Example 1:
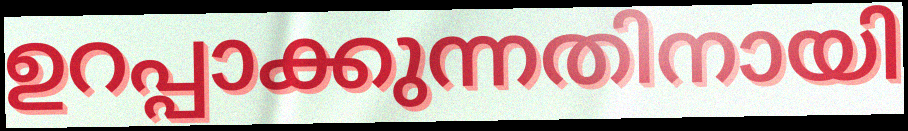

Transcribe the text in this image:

ഉറപ്പാക്കുന്നതിനായി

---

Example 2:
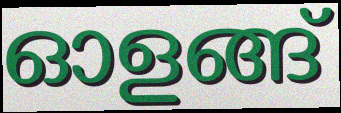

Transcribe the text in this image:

ഓളങ്ങ്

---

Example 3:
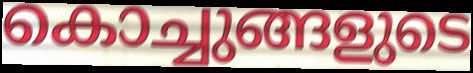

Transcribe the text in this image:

കൊച്ചുങ്ങളുടെ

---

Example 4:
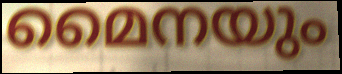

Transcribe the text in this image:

മൈനയും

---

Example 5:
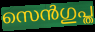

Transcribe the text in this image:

സെൻഗുപ്ത